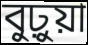
বুঢ়ুয়া